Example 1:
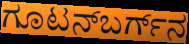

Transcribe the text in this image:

ಗೂಟನ್‌ಬರ್ಗ್‌ನ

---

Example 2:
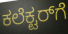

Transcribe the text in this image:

ಕಲೆಕ್ಟರ್‌ಗೆ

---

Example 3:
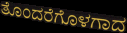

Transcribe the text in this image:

ತೊಂದರೆಗೊಳಗಾದ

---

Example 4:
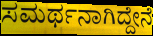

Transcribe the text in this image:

ಸಮರ್ಥನಾಗಿದ್ದೇನೆ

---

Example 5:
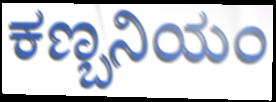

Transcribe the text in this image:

ಕಣ್ಬನಿಯಂ